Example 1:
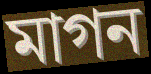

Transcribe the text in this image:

মাগন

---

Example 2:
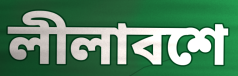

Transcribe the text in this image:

লীলাবশে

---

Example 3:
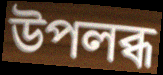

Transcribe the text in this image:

উপলব্ধ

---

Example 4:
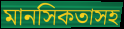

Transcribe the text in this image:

মানসিকতাসহ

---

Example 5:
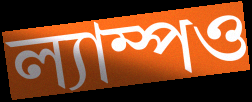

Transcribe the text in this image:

ল্যাম্পও